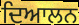
ਦਿਆਲਨ